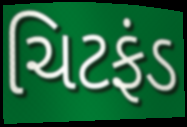
ચિટફંડ